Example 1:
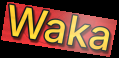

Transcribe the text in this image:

Waka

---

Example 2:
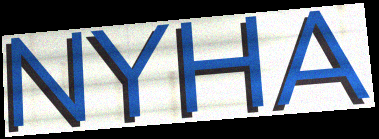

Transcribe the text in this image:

NYHA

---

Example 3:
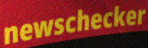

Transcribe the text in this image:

newschecker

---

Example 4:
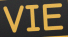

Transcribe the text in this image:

VIE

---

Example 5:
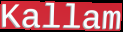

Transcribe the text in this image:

Kallam